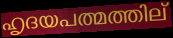
ഹൃദയപത്മത്തില്